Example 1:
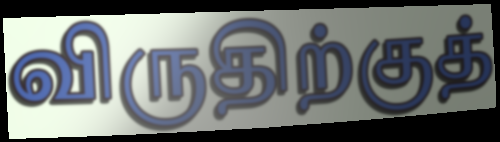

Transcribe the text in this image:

விருதிற்குத்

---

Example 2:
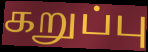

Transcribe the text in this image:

கறுப்பு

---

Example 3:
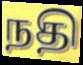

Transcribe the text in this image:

நதி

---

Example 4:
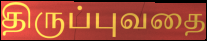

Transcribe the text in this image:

திருப்புவதை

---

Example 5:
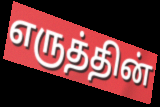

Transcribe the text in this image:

எருத்தின்